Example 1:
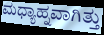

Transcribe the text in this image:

ಮಧ್ಯಾಹ್ನವಾಗಿತ್ತು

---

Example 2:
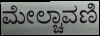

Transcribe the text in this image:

ಮೇಲ್ಚಾವಣಿ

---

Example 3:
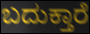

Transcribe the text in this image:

ಬದುಕ್ತಾರೆ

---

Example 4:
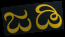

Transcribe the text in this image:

ಜಡಿ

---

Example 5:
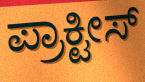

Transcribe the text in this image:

ಪ್ರಾಕ್ಟೀಸ್